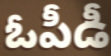
ఓపీడీ